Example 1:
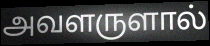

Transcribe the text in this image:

அவளருளால்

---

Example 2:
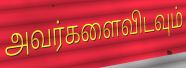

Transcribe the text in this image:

அவர்களைவிடவும்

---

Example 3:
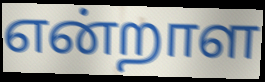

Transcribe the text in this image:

என்றாள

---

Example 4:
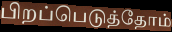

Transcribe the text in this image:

பிறப்பெடுத்தோம்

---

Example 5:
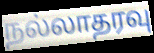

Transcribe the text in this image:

நல்லாதரவு